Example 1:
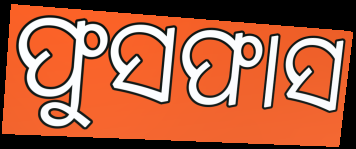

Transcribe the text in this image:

ଫୁସଫାସ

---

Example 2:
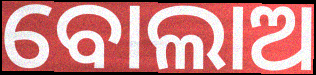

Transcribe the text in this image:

ବୋଲାଅ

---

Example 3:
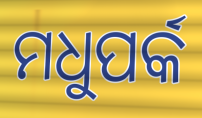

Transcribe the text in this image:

ମଧୁପର୍କ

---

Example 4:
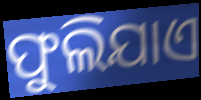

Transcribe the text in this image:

ଫୁଲିଯାଏ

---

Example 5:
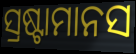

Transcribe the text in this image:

ସ୍ରଷ୍ଟାମାନସ